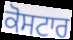
ਕੋਸਟਾਰ